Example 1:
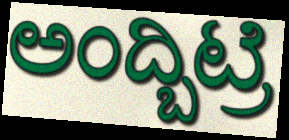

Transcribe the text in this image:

ಅಂದ್ಬಿಟ್ರೆ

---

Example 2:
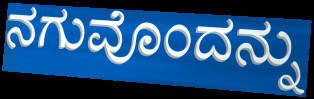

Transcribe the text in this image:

ನಗುವೊಂದನ್ನು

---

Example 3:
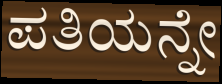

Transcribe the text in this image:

ಪತಿಯನ್ನೇ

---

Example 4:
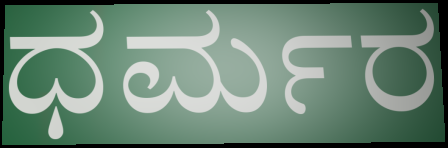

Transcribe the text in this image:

ಧರ್ಮರ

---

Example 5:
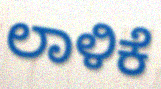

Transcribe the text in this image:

ಲಾಳಿಕೆ